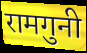
रामगुनी